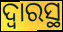
ଦ୍ବାରସ୍ଥ